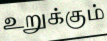
உறுக்கும்